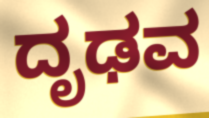
ದೃಢವ